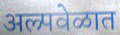
अल्पवेळात